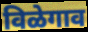
विळेगाव